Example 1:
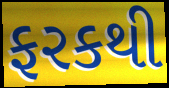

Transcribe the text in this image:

ફરકથી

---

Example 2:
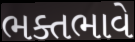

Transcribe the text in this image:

ભક્તભાવે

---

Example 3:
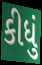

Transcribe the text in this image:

કીધું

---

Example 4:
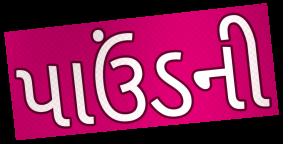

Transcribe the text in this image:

પાઉંડની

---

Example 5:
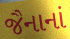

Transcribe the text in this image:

જૈનાનાં